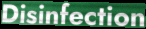
Disinfection